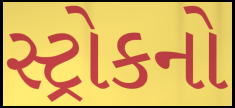
સ્ટ્રોકનો